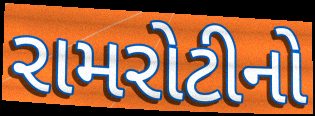
રામરોટીનો